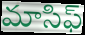
మాసిఫ్